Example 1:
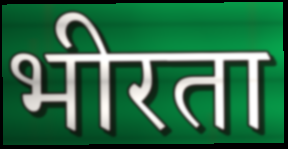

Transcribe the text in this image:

भीरता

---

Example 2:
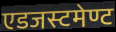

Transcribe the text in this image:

एडजस्टमेण्ट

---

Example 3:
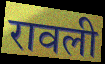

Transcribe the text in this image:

रावली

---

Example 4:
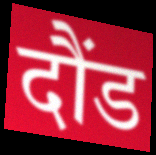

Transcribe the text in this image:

दौंड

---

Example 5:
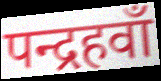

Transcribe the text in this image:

पन्द्रहवाँ